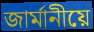
জাৰ্মানীয়ে